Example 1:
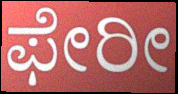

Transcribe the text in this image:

ಫೇರೀ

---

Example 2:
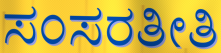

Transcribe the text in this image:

ಸಂಸರತೀತಿ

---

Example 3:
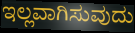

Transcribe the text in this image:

ಇಲ್ಲವಾಗಿಸುವುದು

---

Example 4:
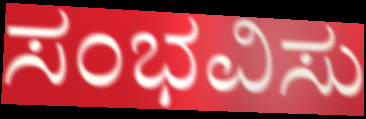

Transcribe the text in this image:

ಸಂಭವಿಸು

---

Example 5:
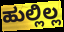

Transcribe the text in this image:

ಹುಲ್ಲಿಲ್ಲ